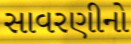
સાવરણીનો